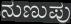
ನುಣುಪು